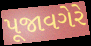
પૂજાવગેરે